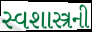
સ્વશાસ્ત્રની